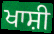
ਖਾਸ਼ੀ